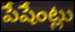
పేషేంట్లు